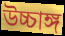
উচ্চাঙ্গ